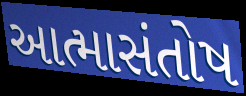
આત્માસંતોષ